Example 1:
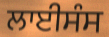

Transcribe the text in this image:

ਲਾਈਸੰਸ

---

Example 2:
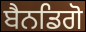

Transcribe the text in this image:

ਬੈਨਡਿਗੋ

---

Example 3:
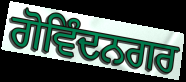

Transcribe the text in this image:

ਗੋਵਿੰਦਨਗਰ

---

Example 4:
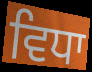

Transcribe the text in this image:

ਵਿਧਾ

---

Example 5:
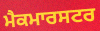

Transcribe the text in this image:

ਮੈਕਮਾਰਸਟਰ